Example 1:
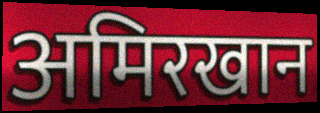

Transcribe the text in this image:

अमिरखान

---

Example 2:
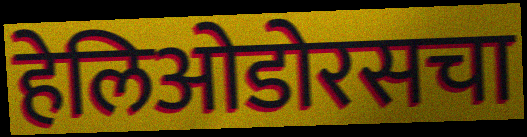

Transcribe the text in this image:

हेलिओडोरसचा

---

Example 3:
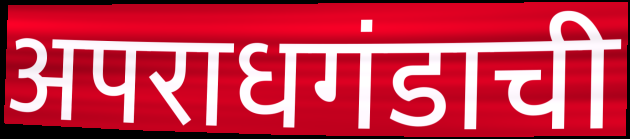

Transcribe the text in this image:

अपराधगंडाची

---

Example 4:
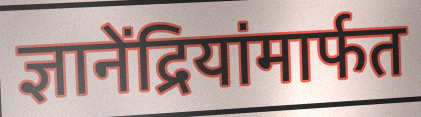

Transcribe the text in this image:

ज्ञानेंद्रियांमार्फत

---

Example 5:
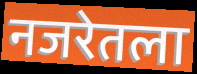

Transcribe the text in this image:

नजरेतला